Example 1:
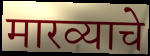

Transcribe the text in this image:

मारव्याचे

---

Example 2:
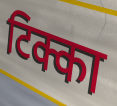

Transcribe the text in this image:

टिक्का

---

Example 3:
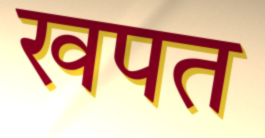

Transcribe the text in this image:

खपत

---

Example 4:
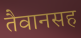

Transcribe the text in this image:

तैवानसह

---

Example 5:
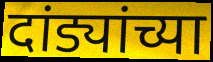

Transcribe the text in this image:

दांड्यांच्या